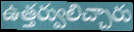
ఉత్తర్వులిచ్చారు